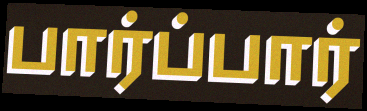
பார்ப்பார்